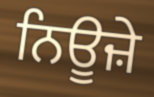
ਨਿਊਜ਼ੇ